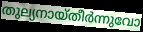
തുല്യനായ്തീർന്നുവോ